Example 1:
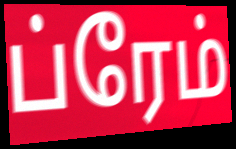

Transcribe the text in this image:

ப்ரேம்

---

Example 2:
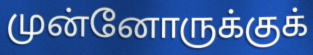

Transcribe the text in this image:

முன்னோருக்குக்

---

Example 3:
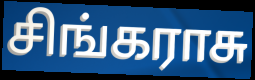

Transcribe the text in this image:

சிங்கராசு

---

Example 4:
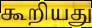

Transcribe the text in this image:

கூறியது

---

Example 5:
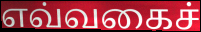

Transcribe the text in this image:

எவ்வகைச்